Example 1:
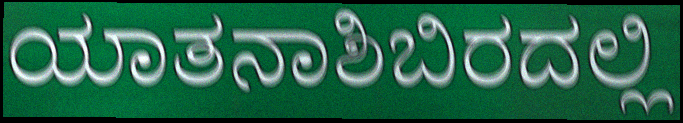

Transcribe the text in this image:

ಯಾತನಾಶಿಬಿರದಲ್ಲಿ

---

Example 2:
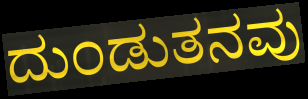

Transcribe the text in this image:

ದುಂಡುತನವು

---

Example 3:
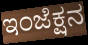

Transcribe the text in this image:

ಇಂಜೆಕ್ಷನ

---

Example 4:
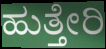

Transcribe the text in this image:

ಹುತ್ತೇರಿ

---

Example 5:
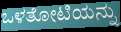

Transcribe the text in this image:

ಒಳತೋಟಿಯನ್ನು